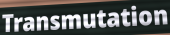
Transmutation